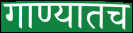
गाण्यातच